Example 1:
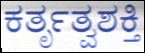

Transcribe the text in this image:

ಕರ್ತೃತ್ವಶಕ್ತಿ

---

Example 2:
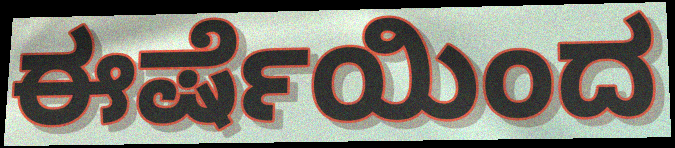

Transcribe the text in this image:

ಈರ್ಷೆಯಿಂದ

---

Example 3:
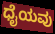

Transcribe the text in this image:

ಧೈಯವು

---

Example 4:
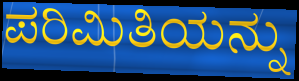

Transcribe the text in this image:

ಪರಿಮಿತಿಯನ್ನು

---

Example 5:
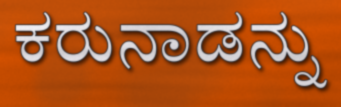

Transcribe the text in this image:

ಕರುನಾಡನ್ನು